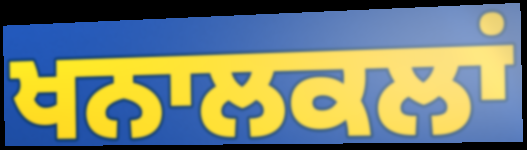
ਖਨਾਲਕਲਾਂ